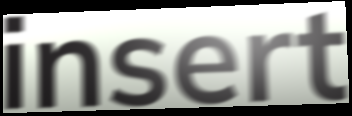
insert